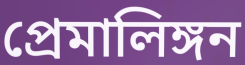
প্রেমালিঙ্গন